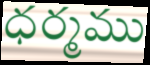
ధర్మము